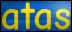
atas